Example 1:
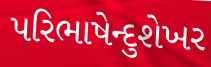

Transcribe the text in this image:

પરિભાષેન્દુશેખર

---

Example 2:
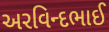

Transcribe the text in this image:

અરવિન્દભાઈ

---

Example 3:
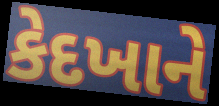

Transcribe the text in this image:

કેદખાને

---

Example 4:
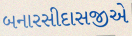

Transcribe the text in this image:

બનારસીદાસજીએ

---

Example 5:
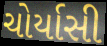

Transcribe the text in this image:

ચોર્યાસી